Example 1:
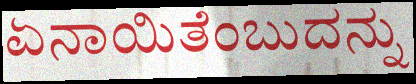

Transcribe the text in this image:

ಏನಾಯಿತೆಂಬುದನ್ನು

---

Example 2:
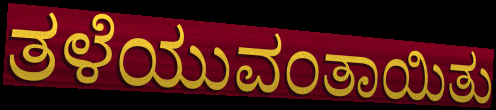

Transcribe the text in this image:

ತಳೆಯುವಂತಾಯಿತು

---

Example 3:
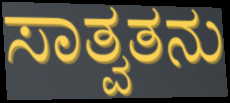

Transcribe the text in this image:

ಸಾತ್ವತನು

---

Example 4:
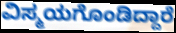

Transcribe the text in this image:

ವಿಸ್ಮಯಗೊಂಡಿದ್ದಾರೆ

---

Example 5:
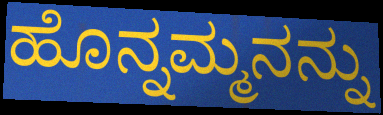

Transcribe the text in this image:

ಹೊನ್ನಮ್ಮನನ್ನು